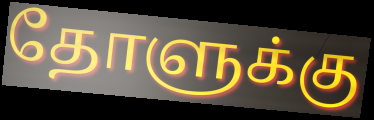
தோளுக்கு